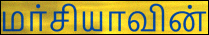
மர்சியாவின்